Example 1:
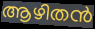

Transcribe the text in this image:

ആഴിതൻ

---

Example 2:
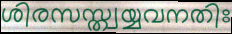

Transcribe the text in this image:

ശിരസസ്ത്വയ്യവനതിഃ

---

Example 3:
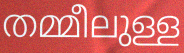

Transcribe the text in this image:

തമ്മീലുള്ള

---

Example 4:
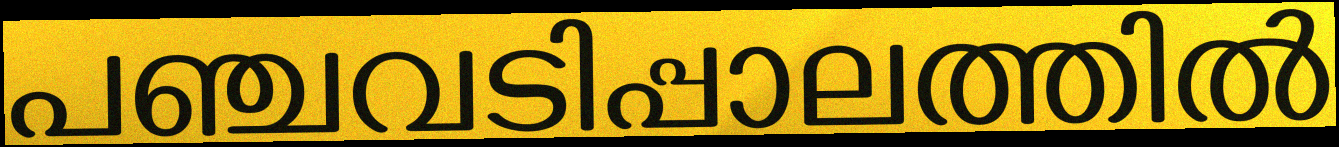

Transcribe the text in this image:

പഞ്ചവടിപ്പാലത്തിൽ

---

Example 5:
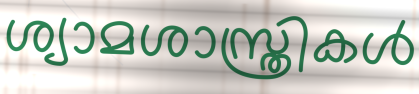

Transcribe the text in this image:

ശ്യാമശാസ്ത്രികൾ